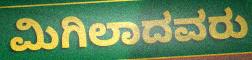
ಮಿಗಿಲಾದವರು